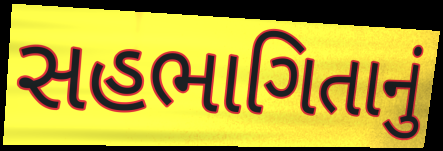
સહભાગિતાનું